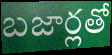
బజార్లతో